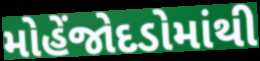
મોહેંજોદડોમાંથી